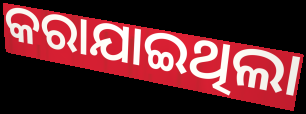
କରାଯାଇଥିଲା